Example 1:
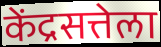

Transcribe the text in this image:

केंद्रसत्तेला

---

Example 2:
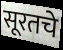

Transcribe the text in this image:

सूरतचे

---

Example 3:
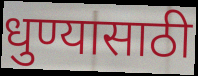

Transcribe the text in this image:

धुण्यासाठी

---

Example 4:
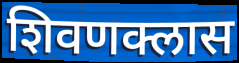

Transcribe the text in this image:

शिवणक्लास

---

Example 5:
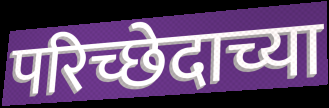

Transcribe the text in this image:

परिच्छेदाच्या